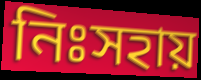
নিঃসহায়